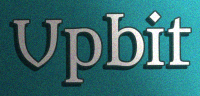
Upbit